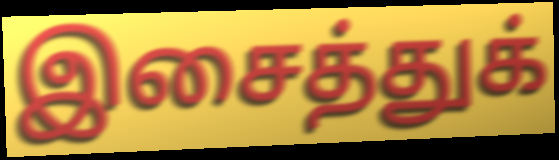
இசைத்துக்